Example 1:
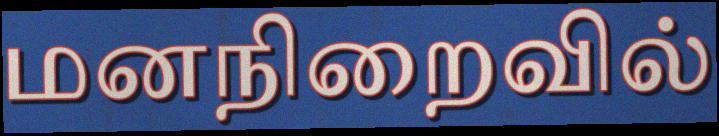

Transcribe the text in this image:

மனநிறைவில்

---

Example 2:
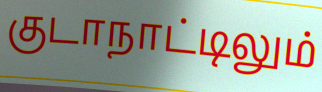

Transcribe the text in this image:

குடாநாட்டிலும்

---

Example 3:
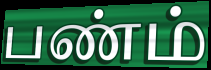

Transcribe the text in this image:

பண்ம்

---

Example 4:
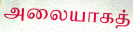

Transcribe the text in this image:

அலையாகத்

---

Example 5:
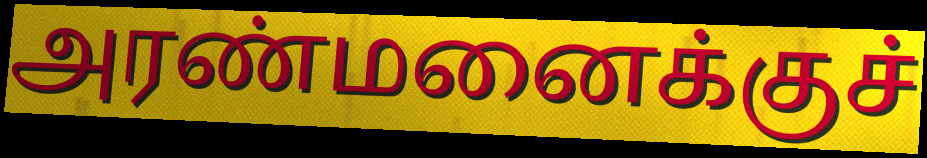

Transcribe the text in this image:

அரண்மனைக்குச்